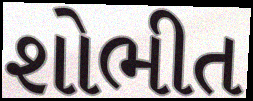
શોભીત